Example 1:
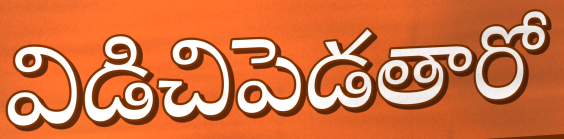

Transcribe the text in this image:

విడిచిపెడతారో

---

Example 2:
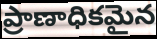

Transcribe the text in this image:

ప్రాణాధికమైన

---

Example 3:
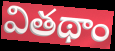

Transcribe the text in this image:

వితథాం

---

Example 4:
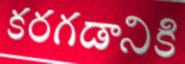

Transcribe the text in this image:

కరగడానికి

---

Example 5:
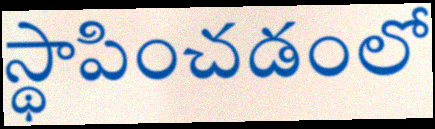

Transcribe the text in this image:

స్థాపించడంలో